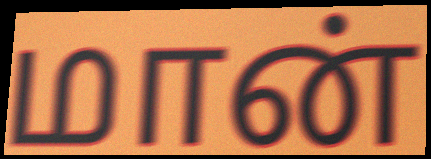
மான்